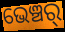
ଭେଞ୍ଚର୍